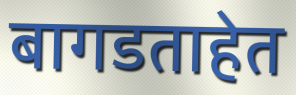
बागडताहेत